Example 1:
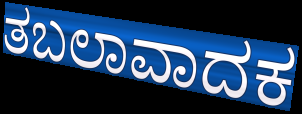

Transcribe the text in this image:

ತಬಲಾವಾದಕ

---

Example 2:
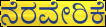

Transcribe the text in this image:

ನೆರವೇರಿಕೆ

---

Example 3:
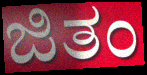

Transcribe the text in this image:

ಜಿತಂ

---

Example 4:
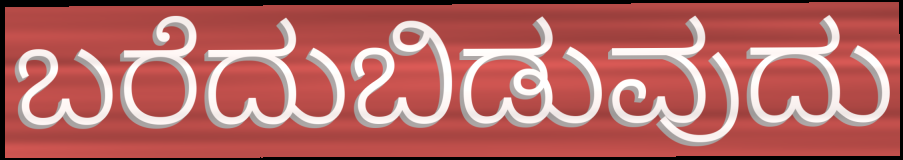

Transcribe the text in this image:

ಬರೆದುಬಿಡುವುದು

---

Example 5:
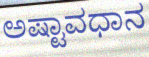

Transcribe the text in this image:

ಅಷ್ಟಾವಧಾನ